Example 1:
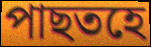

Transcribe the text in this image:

পাছতহে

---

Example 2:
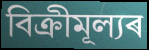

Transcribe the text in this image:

বিক্ৰীমূল্যৰ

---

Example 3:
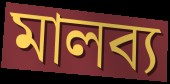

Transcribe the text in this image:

মালব্য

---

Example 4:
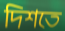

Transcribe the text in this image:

দিশতে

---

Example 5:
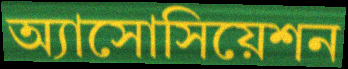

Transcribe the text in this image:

অ্যাসোসিয়েশন